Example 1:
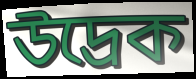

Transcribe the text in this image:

উদ্ৰেক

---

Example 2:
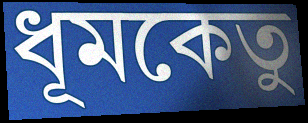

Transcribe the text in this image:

ধূমকেতু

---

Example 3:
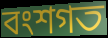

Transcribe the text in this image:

বংশগত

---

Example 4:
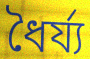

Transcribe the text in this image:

ধৈৰ্য্য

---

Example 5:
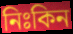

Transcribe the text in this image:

নিঃকিন